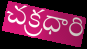
చక్రధారి